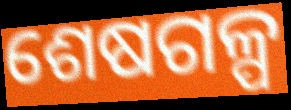
ଶେଷଗଳ୍ପ